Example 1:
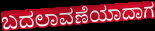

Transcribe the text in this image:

ಬದಲಾವಣೆಯಾದಾಗ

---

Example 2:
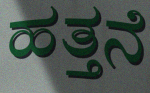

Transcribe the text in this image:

ಹತ್ತನೆ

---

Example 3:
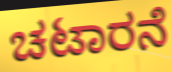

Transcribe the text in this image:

ಚಟಾರನೆ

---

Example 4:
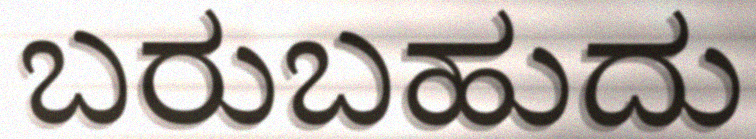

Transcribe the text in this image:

ಬರುಬಹುದು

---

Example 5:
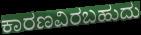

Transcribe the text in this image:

ಕಾರಣವಿರಬಹುದು